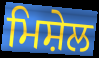
ਮਿਸ਼ੇਲ